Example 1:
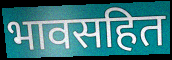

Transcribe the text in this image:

भावसहित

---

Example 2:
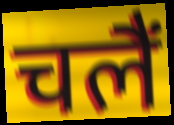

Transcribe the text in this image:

चलैं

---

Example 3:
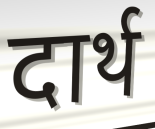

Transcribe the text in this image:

दार्थ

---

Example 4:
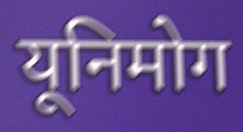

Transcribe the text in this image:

यूनिमोग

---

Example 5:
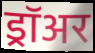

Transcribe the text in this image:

ड्रॉअर